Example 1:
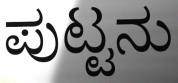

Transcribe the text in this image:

ಪುಟ್ಟನು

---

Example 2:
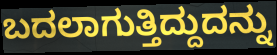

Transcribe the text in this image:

ಬದಲಾಗುತ್ತಿದ್ದುದನ್ನು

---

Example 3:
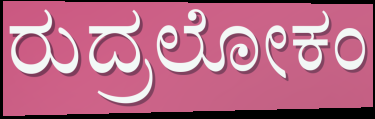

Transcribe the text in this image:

ರುದ್ರಲೋಕಂ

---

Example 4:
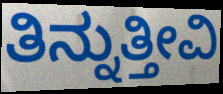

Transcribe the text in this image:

ತಿನ್ನುತ್ತೀವಿ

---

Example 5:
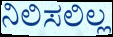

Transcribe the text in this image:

ನಿಲಿಸಲಿಲ್ಲ